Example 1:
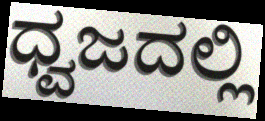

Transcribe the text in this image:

ಧ್ವಜದಲ್ಲಿ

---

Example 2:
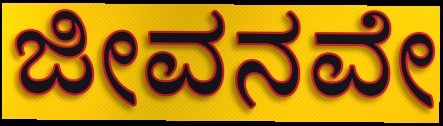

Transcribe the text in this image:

ಜೀವನವೇ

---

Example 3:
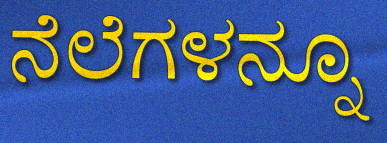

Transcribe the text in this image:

ನೆಲೆಗಳನ್ನೂ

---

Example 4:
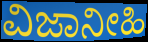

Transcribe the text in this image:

ವಿಜಾನೀಹಿ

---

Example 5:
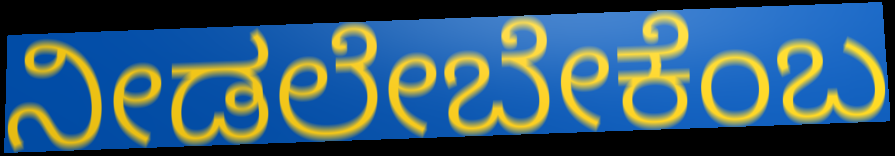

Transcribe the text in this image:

ನೀಡಲೇಬೇಕೆಂಬ